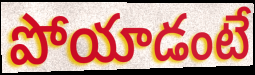
పోయాడంటే